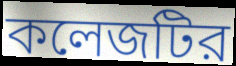
কলেজটির